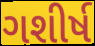
ગશીર્ષ